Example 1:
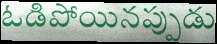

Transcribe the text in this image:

ఓడిపోయినప్పుడు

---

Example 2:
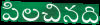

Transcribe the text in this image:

పిలచినది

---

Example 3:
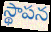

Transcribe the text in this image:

స్థాపన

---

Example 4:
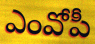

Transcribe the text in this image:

ఎంవోపీ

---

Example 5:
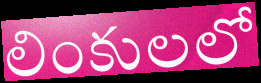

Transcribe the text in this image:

లింకులలో